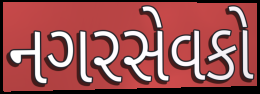
નગરસેવકો